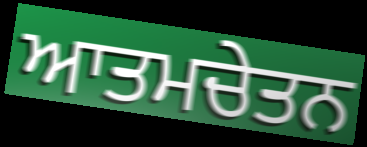
ਆਤਮਚੇਤਨ